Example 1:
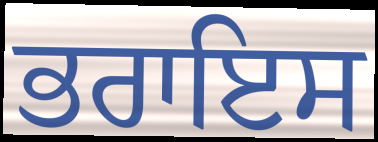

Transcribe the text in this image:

ਭਰਾਇਸ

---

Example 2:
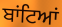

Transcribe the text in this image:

ਬਾਂਟਿਆਂ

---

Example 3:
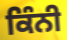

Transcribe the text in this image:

ਕਿੰਨੀ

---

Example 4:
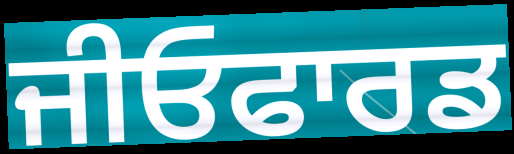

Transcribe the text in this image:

ਜੀਓਫਾਰਡ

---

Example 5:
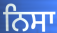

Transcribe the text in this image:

ਨਿਸਾ